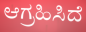
ಆಗ್ರಹಿಸಿದೆ